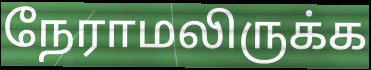
நேராமலிருக்க